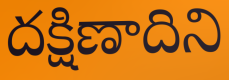
దక్షిణాదిని